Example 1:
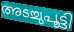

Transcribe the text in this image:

അടച്ചുപൂട്ടി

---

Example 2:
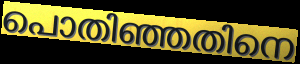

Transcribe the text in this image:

പൊതിഞ്ഞതിനെ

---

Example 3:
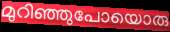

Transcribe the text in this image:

മുറിഞ്ഞുപോയൊരു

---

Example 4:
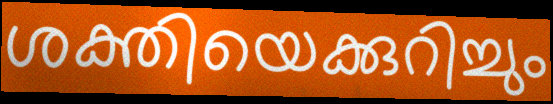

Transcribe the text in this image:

ശക്തിയെക്കുറിച്ചും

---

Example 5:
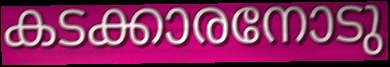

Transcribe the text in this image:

കടക്കാരനോടു